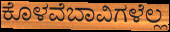
ಕೊಳವೆಬಾವಿಗಳೆಲ್ಲ